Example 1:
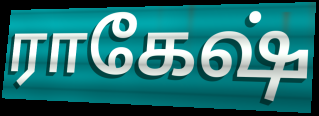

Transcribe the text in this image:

ராகேஷ்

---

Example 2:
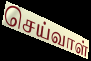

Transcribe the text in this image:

செய்வாள்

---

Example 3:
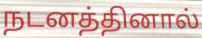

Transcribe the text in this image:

நடனத்தினால்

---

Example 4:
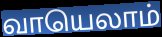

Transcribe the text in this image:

வாயெலாம்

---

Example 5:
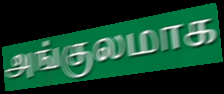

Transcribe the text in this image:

அங்குலமாக